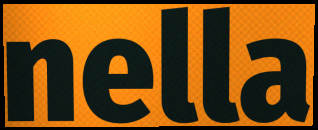
nella